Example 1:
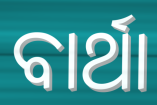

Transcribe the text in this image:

ବାର୍ଥା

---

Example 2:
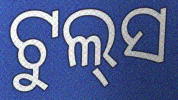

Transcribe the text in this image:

ଟୁଲ୍‌ସ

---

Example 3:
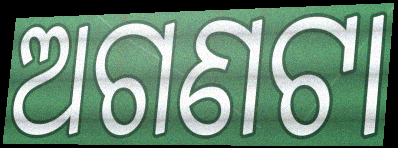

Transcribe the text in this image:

ଅଗଣଟା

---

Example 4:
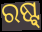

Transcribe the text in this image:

ରଷ୍ଟ୍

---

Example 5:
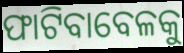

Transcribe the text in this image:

ଫାଟିବାବେଳକୁ